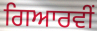
ਗਿਆਰਵੀਂ